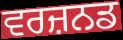
ਵਰਜ਼ਨਡ